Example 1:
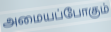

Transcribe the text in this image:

அமையப்போகும்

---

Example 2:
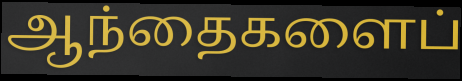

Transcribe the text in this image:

ஆந்தைகளைப்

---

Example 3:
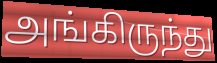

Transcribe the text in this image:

அங்கிருந்து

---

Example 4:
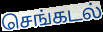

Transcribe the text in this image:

செங்கடல்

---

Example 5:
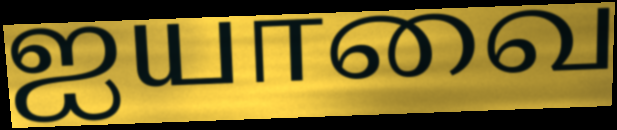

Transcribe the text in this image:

ஐயாவை